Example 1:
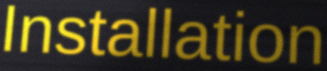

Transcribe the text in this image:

Installation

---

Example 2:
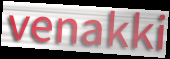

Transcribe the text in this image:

venakki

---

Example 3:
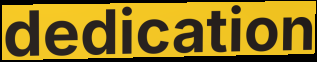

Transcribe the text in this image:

dedication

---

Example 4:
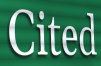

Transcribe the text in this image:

Cited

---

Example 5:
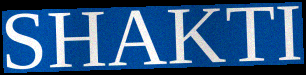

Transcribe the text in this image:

SHAKTI